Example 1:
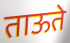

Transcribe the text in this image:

ताऊते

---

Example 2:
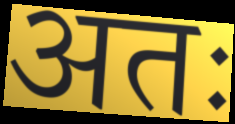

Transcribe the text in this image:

अतः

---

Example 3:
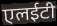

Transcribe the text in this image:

एलईटी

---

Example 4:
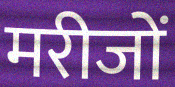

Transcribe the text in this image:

मरीजों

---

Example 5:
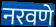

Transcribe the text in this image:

नरवणे